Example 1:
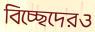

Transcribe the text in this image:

বিচ্ছেদেরও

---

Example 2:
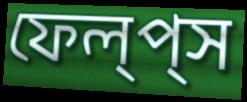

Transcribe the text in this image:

ফেল্‌প্‌স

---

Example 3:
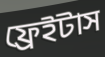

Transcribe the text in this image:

ফ্রেইটাস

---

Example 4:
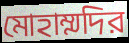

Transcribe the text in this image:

মোহাম্মদির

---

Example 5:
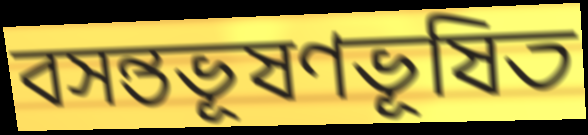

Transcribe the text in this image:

বসন্তভূষণভূষিত